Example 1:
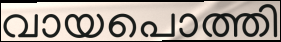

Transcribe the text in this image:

വായപൊത്തി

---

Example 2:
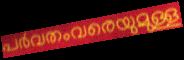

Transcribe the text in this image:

പർവതംവരെയുമുള്ള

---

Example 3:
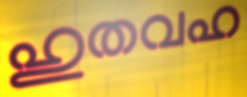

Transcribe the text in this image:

ഹുതവഹ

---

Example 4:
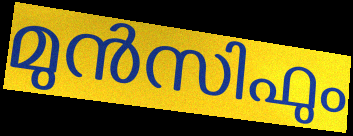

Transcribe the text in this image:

മുൻസിഫും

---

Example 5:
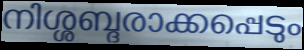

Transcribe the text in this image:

നിശ്ശബ്ദരാക്കപ്പെടും